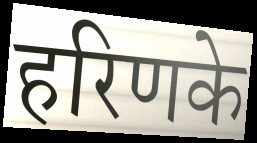
हरिणके